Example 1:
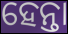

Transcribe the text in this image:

ହେନ୍ତା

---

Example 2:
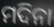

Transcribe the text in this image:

ମଦିନା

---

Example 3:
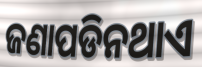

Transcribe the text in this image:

ଜଣାପଡିନଥାଏ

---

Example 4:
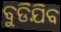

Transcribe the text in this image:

ବୁଡିଯିବ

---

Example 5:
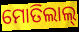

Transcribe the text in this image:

ମୋତିଲାଲ୍